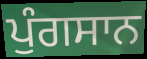
ਪੁੰਗਸਾਨ